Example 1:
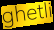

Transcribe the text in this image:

ghetli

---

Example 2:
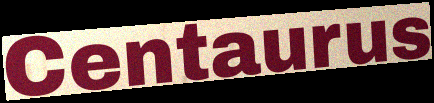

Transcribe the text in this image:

Centaurus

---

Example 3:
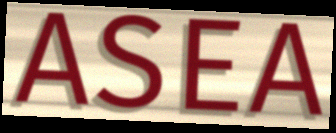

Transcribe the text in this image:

ASEA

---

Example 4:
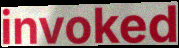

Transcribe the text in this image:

invoked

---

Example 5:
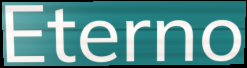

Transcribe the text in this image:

Eterno